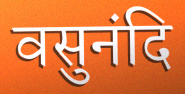
वसुनंदि